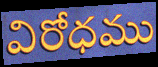
విరోధము